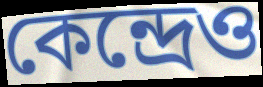
কেন্দ্রেও